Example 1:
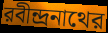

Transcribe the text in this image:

রবীন্দ্রনাথের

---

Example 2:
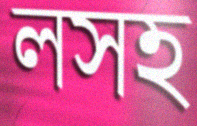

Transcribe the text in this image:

লসহ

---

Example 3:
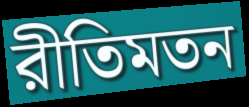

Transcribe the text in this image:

রীতিমতন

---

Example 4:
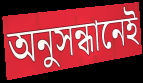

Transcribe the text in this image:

অনুসন্ধানেই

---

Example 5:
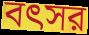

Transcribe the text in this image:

বৎসর